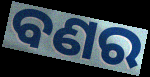
ବଣର